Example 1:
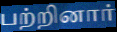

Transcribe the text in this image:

பற்றினார்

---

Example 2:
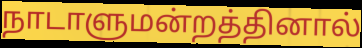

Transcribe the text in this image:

நாடாளுமன்றத்தினால்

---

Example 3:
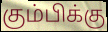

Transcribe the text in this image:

கும்பிக்கு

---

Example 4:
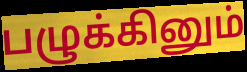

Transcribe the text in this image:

பழுக்கினும்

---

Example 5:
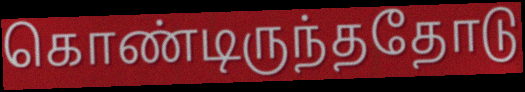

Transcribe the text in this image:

கொண்டிருந்ததோடு